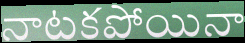
నాటకపోయినా